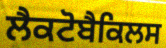
ਲੈਕਟੋਬੈਕਿਲਸ